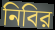
নিবির